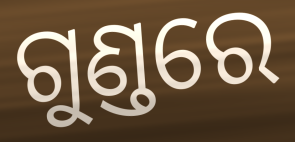
ଗୁଣ୍ଡରେ